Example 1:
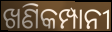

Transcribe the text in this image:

ଖଣିକମ୍ପାନୀ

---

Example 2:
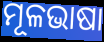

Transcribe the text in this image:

ମୂଳଭାଷା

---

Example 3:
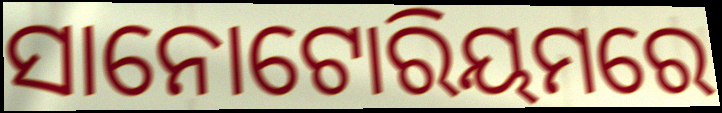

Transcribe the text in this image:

ସାନୋଟୋରିୟମରେ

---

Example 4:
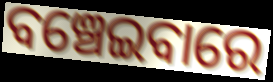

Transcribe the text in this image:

ବଞ୍ଚେଇବାରେ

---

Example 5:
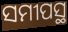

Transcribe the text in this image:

ସମୀପସ୍ଥ